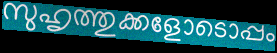
സുഹൃത്തുക്കളോടൊപ്പം